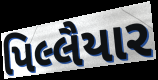
પિલ્લૈયાર